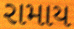
રામાય